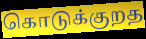
கொடுக்குறத